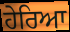
ਹੇਰਿਆ